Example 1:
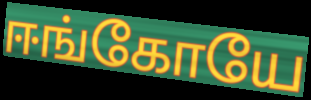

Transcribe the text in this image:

ஈங்கோயே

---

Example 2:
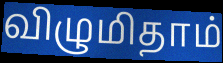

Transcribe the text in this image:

விழுமிதாம்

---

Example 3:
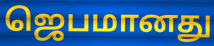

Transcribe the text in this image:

ஜெபமானது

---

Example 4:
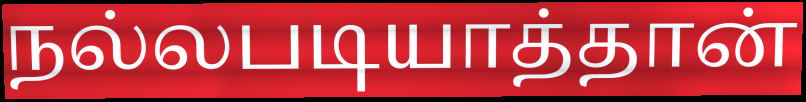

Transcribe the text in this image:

நல்லபடியாத்தான்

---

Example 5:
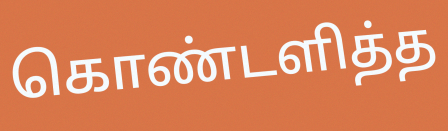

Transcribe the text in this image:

கொண்டளித்த